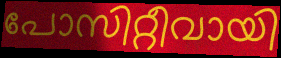
പോസിറ്റീവായി